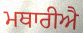
ਮਥਾਰੀਐ